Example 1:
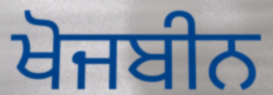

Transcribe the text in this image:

ਖੋਜਬੀਨ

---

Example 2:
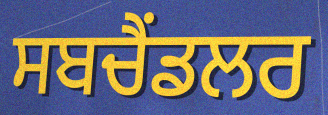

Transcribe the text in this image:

ਸਬਚੈਂਡਲਰ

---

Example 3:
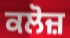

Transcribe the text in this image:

ਕਲੋਜ਼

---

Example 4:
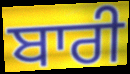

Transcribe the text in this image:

ਬਾਰੀ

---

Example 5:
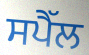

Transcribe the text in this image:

ਸਪੈੱਲ